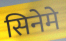
सिनेमे